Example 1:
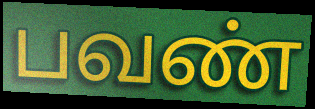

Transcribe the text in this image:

பவண்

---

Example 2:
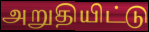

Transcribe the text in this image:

அறுதியிட்டு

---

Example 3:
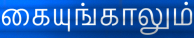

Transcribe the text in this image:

கையுங்காலும்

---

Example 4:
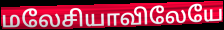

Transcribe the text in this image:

மலேசியாவிலேயே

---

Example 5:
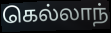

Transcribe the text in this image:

கெல்லாந்